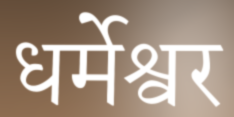
धर्मेश्वर